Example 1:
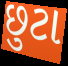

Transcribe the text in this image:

છુટા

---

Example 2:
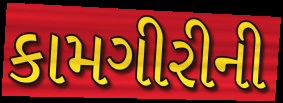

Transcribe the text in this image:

કામગીરીની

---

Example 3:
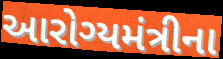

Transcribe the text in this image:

આરોગ્યમંત્રીના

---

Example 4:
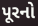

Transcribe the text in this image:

પૂરનો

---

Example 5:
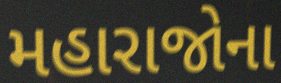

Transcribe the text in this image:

મહારાજોના